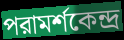
পরামর্শকেন্দ্র